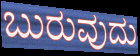
ಬುರುವುದು